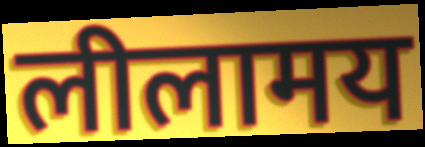
लीलामय